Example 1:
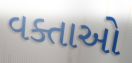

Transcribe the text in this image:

વક્તાઓ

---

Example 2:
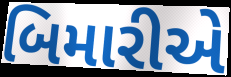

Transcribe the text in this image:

બિમારીએ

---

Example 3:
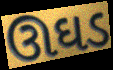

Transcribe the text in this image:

ઊઘડ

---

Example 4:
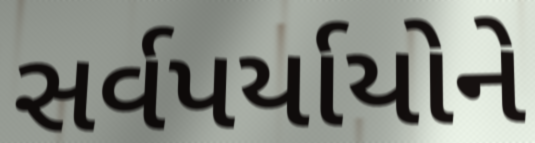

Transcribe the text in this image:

સર્વપર્યાયોને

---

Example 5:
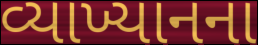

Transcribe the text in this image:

વ્યાખ્યાનના